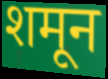
शमून